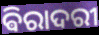
ଵିରାଦରୀ